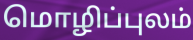
மொழிப்புலம்